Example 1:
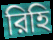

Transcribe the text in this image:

রিহি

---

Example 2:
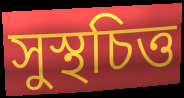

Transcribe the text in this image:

সুস্থচিত্ত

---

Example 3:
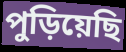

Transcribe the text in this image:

পুড়িয়েছি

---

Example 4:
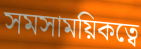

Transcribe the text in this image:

সমসাময়িকত্বে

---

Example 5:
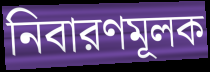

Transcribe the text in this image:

নিবারণমূলক